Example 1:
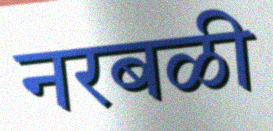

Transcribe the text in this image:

नरबळी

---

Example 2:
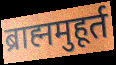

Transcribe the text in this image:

ब्राह्ममुहूर्त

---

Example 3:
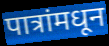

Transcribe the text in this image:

पात्रांमधून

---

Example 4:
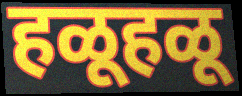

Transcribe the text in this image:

हळूहळू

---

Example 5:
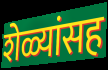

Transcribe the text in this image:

शेळ्यांसह